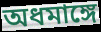
অধমাঙ্গে